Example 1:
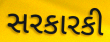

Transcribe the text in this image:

સરકારકી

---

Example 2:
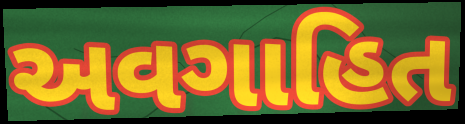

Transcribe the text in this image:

અવગાહિત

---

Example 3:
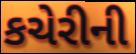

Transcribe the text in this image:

કચેરીની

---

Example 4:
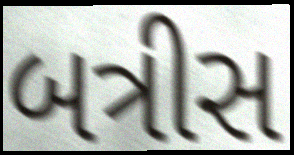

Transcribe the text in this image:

બત્રીસ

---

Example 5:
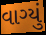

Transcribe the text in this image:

વાગ્યું